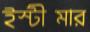
ইস্টীমার